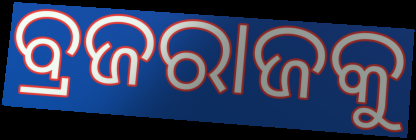
ବ୍ରଜରାଜକୁ